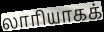
லாரியாகக்